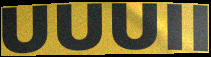
UUUII